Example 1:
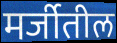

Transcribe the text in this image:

मर्जीतील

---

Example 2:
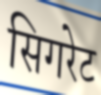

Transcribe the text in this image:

सिगरेट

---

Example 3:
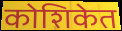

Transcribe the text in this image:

कोशिकेत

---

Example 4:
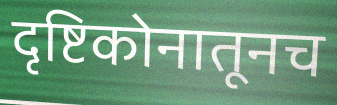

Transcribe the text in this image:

दृष्टिकोनातूनच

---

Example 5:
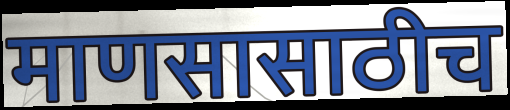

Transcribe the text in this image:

माणसासाठीच